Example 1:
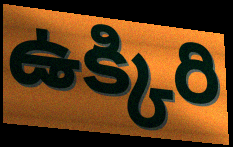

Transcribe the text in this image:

ఉక్కిరి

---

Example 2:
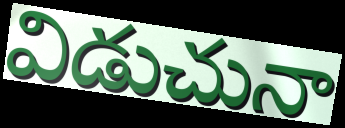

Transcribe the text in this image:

విడుచునా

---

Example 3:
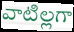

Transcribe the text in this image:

వాటిల్లగా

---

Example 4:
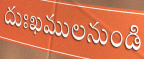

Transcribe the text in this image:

దుఃఖములనుండి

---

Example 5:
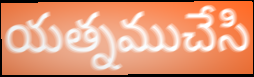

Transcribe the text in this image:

యత్నముచేసి